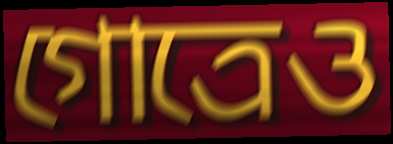
গোত্রেও